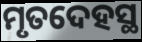
ମୃତଦେହସ୍ଥ